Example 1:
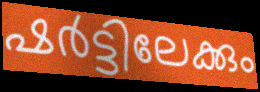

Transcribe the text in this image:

ഷർട്ടിലേക്കും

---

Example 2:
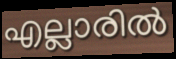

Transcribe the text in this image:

എല്ലാരിൽ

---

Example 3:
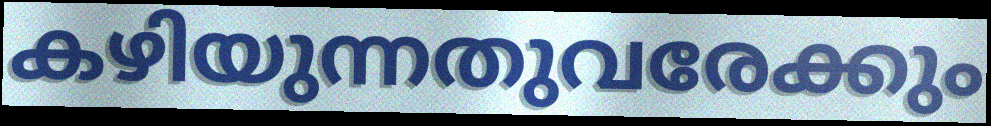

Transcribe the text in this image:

കഴിയുന്നതുവരേക്കും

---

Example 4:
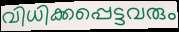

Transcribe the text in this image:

വിധിക്കപ്പെട്ടവരും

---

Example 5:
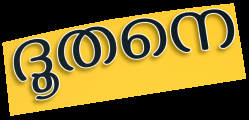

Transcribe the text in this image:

ദൂതനെ